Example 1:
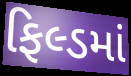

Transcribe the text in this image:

ફિલ્ડમાં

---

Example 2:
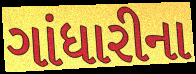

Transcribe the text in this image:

ગાંધારીના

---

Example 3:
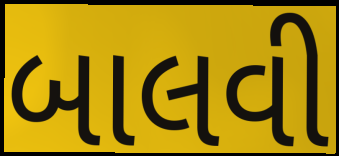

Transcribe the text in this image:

બાલવી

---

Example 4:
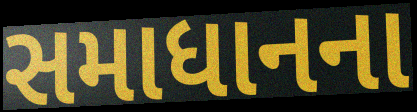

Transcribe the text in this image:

સમાધાનના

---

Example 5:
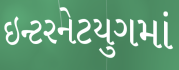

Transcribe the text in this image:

ઇન્ટરનેટયુગમાં